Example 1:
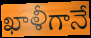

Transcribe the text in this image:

ఖాళీగానే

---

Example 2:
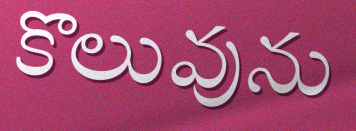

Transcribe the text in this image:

కొలువును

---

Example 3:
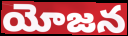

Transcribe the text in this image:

యోజన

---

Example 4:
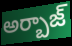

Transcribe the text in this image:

అర్బాజ్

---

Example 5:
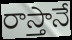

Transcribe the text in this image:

రాస్తానే